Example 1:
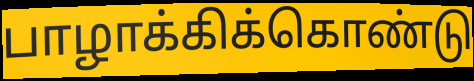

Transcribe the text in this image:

பாழாக்கிக்கொண்டு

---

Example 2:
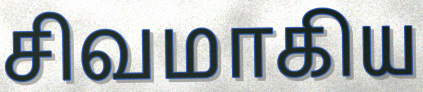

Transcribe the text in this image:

சிவமாகிய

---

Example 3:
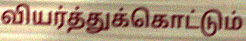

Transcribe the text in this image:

வியர்த்துக்கொட்டும்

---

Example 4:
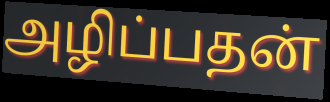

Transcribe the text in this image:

அழிப்பதன்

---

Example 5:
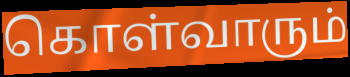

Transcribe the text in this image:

கொள்வாரும்